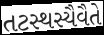
તટસ્થસ્યૈવૈતે